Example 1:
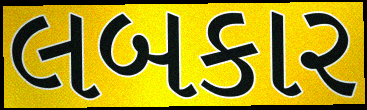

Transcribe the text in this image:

લબકાર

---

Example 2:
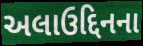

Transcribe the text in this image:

અલાઉદ્દિનના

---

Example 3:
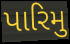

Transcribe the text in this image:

પારિમુ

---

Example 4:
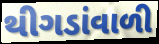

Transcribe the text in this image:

થીગડાંવાળી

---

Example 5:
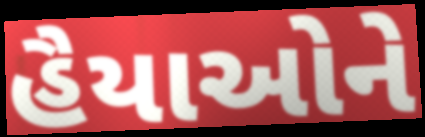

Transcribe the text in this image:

હૈયાઓને